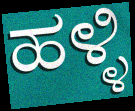
ಹಳ್ಳಿ